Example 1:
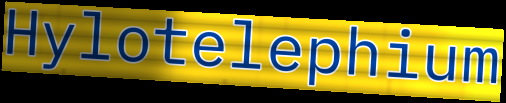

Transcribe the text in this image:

Hylotelephium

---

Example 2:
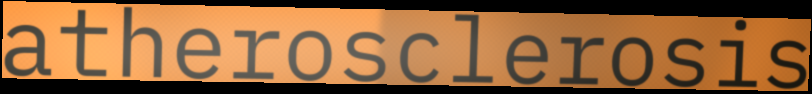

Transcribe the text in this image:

atherosclerosis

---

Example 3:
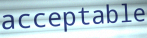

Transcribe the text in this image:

acceptable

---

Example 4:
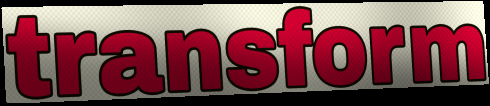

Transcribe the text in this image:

transform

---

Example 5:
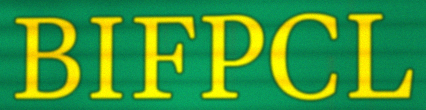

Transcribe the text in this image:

BIFPCL